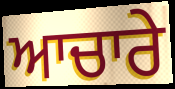
ਆਚਾਰੇ